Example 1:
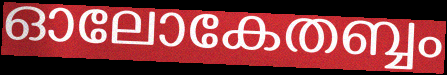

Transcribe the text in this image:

ഓലോകേതബ്ബം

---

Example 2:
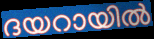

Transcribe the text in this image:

ദയറായിൽ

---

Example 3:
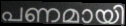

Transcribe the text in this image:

പണമായി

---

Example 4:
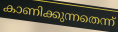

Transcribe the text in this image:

കാണിക്കുന്നതെന്ന്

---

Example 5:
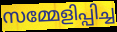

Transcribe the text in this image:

സമ്മേളിപ്പിച്ച